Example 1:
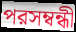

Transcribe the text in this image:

পরসম্বন্ধী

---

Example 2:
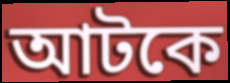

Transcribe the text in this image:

আটকে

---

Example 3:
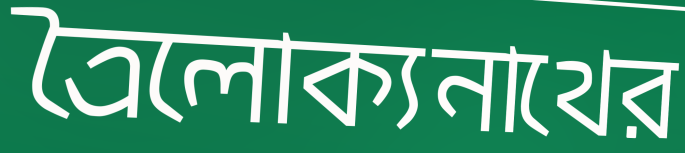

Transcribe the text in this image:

ত্রৈলোক্যনাথের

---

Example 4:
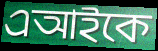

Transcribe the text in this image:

এআইকে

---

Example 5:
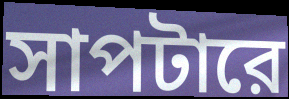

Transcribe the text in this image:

সাপটারে